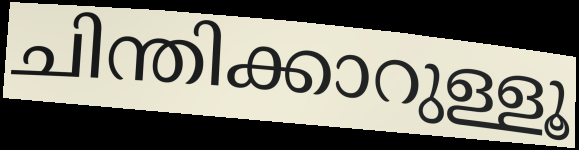
ചിന്തിക്കാറുള്ളൂ